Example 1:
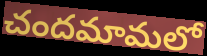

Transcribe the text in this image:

చందమామలో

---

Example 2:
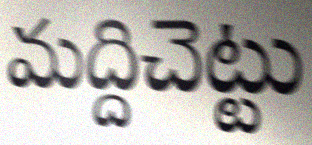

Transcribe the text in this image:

మద్దిచెట్టు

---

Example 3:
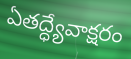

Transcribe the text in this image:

ఏతద్ధ్యేవాక్షరం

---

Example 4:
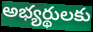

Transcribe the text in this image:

అభ్యర్థులకు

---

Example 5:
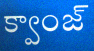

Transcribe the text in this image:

క్వాంజ్